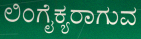
ಲಿಂಗೈಕ್ಯರಾಗುವ